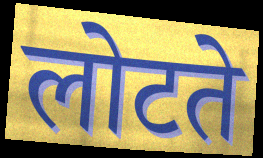
लोटते